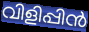
വിളിപ്പിൻ